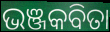
ଭଞ୍ଜକବିତା